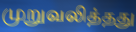
முறுவலித்தது